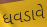
ધવડાવે